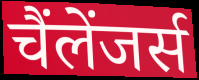
चैंलेंजर्स